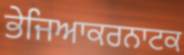
ਭੇਜਿਆਕਰਨਾਟਕ